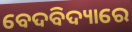
ବେଦବିଦ୍ୟାରେ